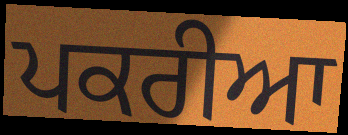
ਪਕਰੀਆ